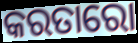
କରତାରୋ